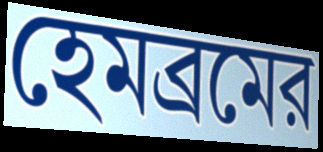
হেমব্রমের